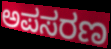
ಅಪಸರಣ